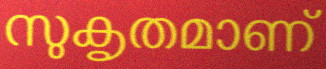
സുകൃതമാണ്